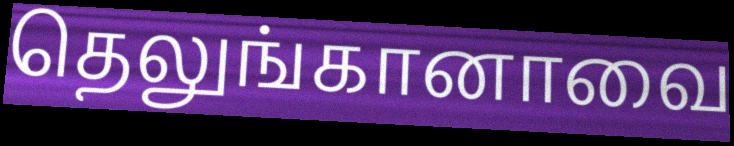
தெலுங்கானாவை